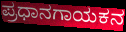
ಪ್ರಧಾನಗಾಯಕನ